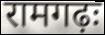
रामगढ़ः